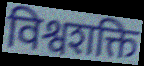
विश्वशक्ति